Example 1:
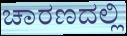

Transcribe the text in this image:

ಚಾರಣದಲ್ಲಿ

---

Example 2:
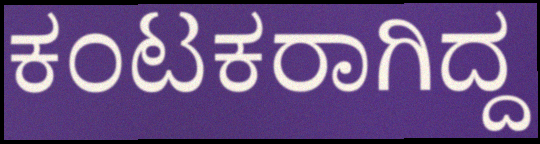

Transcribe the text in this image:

ಕಂಟಕರಾಗಿದ್ದ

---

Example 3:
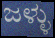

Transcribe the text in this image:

ಜಳ್ಳು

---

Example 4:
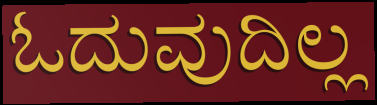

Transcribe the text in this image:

ಓದುವುದಿಲ್ಲ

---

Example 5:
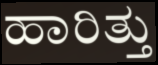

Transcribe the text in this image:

ಹಾರಿತ್ತು